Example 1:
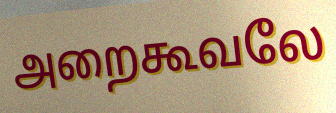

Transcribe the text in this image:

அறைகூவலே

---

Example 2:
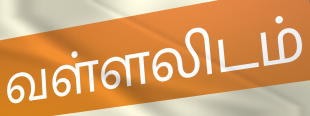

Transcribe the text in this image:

வள்ளலிடம்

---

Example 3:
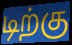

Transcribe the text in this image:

டிற்கு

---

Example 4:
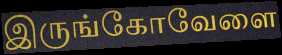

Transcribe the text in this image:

இருங்கோவேளை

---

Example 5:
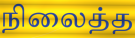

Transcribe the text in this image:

நிலைத்த